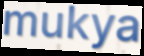
mukya